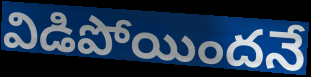
విడిపోయిందనే